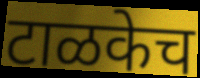
टाळकेच